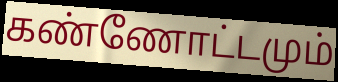
கண்ணோட்டமும்